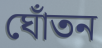
ঘোঁতন